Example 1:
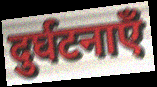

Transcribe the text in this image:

दुर्घटनाएँ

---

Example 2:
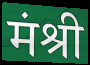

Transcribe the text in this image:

मंश्री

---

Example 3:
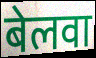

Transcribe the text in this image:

बेलवा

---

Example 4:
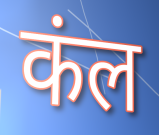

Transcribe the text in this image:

कंल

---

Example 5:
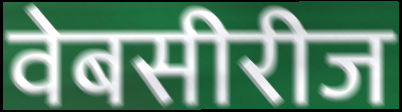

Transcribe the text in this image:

वेबसीरीज